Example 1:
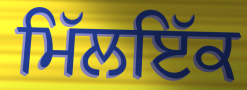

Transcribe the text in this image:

ਮਿੱਲਇੱਕ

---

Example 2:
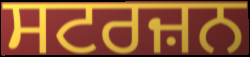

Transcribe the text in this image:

ਸਟਰਜ਼ਨ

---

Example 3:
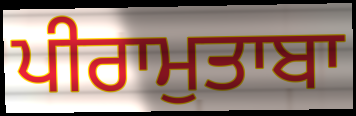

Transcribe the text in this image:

ਪੀਰਾਮੁਤਾਬਾ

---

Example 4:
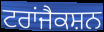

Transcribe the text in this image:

ਟਰਾਂਜੈਕਸ਼ਨ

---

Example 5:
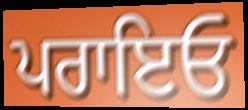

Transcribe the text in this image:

ਪਰਾਇਓ